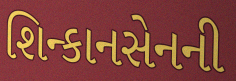
શિન્કાનસેનની